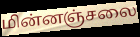
மின்னஞ்சலை